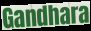
Gandhara